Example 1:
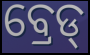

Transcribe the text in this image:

ବ୍ରେଡ୍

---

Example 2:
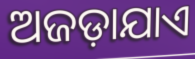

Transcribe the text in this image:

ଅଜଡ଼ାଯାଏ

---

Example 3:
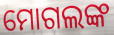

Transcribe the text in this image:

ମୋଗଲଙ୍କ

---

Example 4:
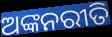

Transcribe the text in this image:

ଅଙ୍କନରୀତି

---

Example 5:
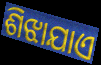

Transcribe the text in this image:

ଶିଝାଯାଏ